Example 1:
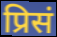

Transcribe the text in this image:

प्रिसं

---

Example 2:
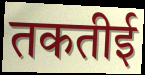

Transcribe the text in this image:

तकतीई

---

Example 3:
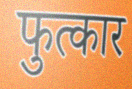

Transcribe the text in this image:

फुत्कार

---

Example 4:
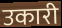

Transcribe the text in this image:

उकारी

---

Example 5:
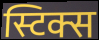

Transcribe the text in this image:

स्टिक्स